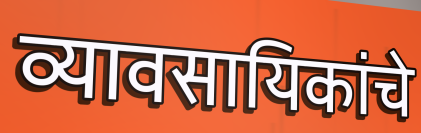
व्यावसायिकांचे